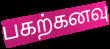
பகற்கனவு